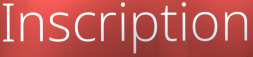
Inscription